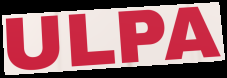
ULPA